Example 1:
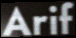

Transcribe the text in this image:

Arif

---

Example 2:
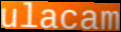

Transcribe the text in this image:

ulacam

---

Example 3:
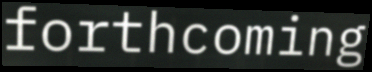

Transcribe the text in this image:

forthcoming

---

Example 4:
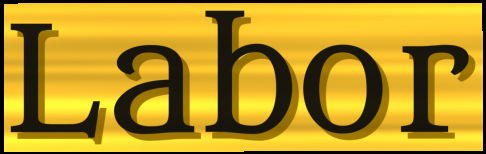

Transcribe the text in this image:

Labor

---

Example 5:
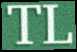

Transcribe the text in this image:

TL